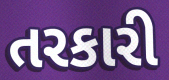
તરકારી